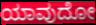
ಯಾವುದೋ